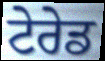
ਟੇਰੇਡ